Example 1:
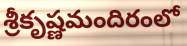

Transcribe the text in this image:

శ్రీకృష్ణమందిరంలో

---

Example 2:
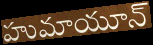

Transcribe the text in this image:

హుమాయూన్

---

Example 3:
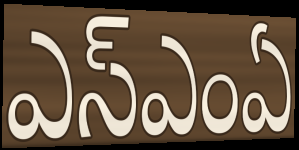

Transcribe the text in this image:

ఎస్ఎంఏ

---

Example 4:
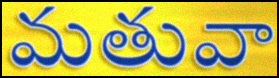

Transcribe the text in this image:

మతువా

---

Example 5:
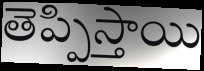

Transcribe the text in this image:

తెప్పిస్తాయి